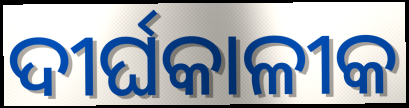
ଦୀର୍ଘକାଳୀକ